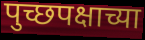
पुच्छपक्षाच्या